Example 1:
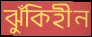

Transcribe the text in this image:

ঝুঁকিহীন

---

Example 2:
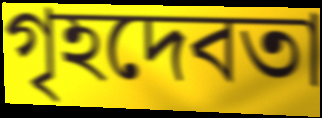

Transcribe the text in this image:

গৃহদেবতা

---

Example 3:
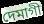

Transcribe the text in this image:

দেমাগী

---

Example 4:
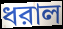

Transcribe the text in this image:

ধরাল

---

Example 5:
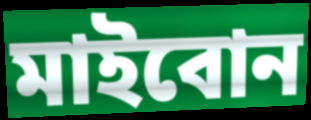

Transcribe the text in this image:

মাইবোন